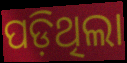
ପଡ଼ିଥିଲା